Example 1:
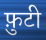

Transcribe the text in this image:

फ़ुटी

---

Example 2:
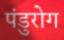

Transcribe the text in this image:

पंडुरोग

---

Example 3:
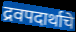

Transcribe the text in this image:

द्रवपदार्थाचे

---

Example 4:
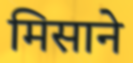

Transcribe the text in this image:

मिसाने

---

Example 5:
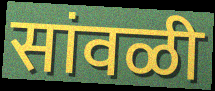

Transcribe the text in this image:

सांवळी